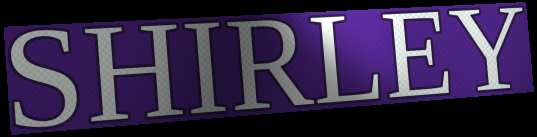
SHIRLEY